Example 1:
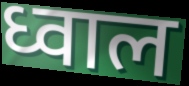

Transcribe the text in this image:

ध्वाल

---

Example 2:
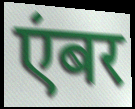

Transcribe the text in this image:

एंबर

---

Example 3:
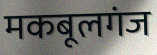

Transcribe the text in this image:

मकबूलगंज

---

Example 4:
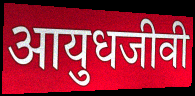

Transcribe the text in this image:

आयुधजीवी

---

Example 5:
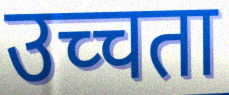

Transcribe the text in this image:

उच्चता